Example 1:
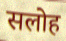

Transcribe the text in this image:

सलोह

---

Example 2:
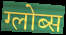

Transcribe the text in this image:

ग्लोब्स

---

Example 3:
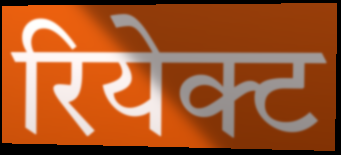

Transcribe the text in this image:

रियेक्ट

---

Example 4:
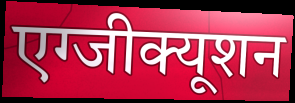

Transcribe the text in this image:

एग्जीक्यूशन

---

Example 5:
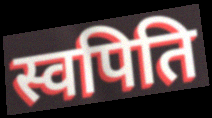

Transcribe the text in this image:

स्वपिति